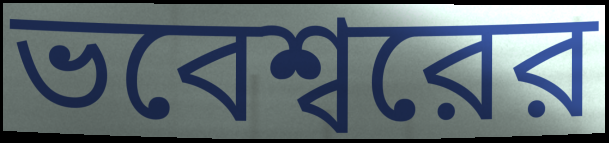
ভবেশ্বরের